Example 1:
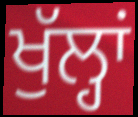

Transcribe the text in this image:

ਖੁੱਲ੍ਹਾਂ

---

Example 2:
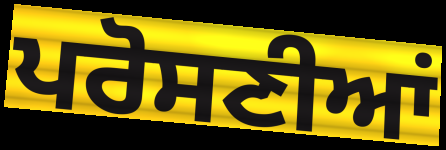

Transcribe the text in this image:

ਪਰੋਸਣੀਆਂ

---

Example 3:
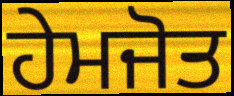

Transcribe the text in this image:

ਹੇਮਜੋਤ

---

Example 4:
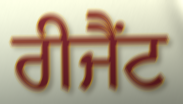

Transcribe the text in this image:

ਰੀਜੈਂਟ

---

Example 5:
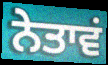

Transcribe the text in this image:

ਨੇਤਾਵਂ